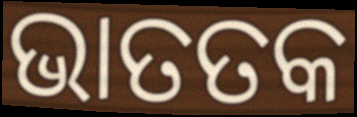
ଭାତତକ